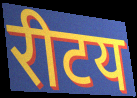
रीटय